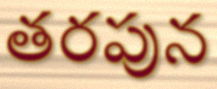
తరపున